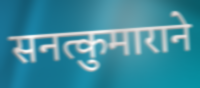
सनत्कुमाराने